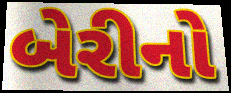
બેરીનો